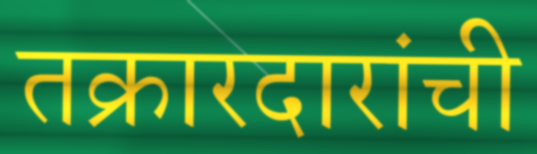
तक्रारदारांची